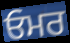
ਓਮਰ